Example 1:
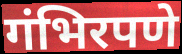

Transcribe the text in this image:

गंभिरपणे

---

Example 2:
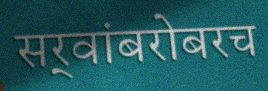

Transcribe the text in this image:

सर्वांबरोबरच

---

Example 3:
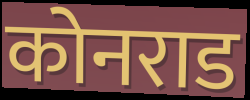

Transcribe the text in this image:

कोनराड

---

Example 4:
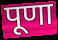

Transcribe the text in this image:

पूणा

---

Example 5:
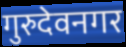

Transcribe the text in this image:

गुरुदेवनगर